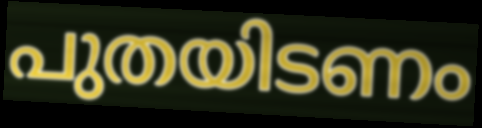
പുതയിടണം